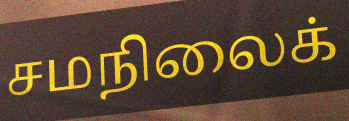
சமநிலைக்